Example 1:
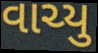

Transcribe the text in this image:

વાચ્યુ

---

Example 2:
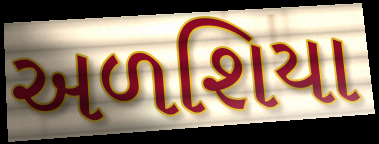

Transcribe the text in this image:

અળશિયા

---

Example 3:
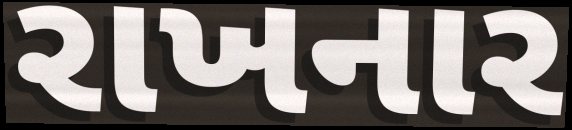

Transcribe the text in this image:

રાખનાર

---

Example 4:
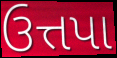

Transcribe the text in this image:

ઉત્તપા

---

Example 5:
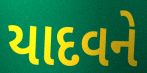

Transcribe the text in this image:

યાદવને